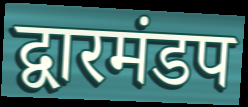
द्वारमंडप